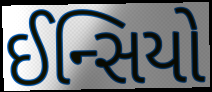
ઈન્સિયો